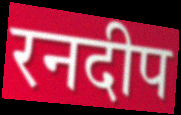
रनदीप